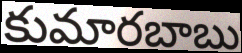
కుమారబాబు